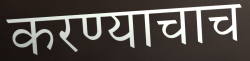
करण्याचाच